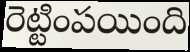
రెట్టింపయింది